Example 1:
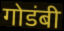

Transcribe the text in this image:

गोडंबी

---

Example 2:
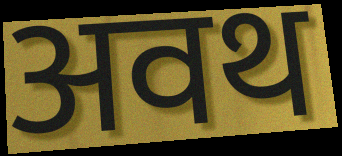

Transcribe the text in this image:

अवथ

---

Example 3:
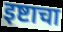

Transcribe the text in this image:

इष्टाचा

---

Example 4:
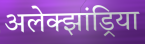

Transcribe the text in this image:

अलेक्झांड्रिया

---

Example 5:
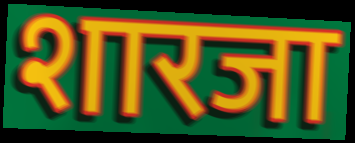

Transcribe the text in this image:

शारजा